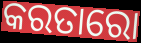
କରତାରୋ